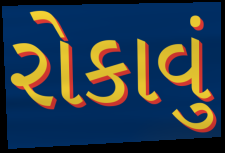
રોકાવું